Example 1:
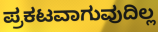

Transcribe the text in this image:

ಪ್ರಕಟವಾಗುವುದಿಲ್ಲ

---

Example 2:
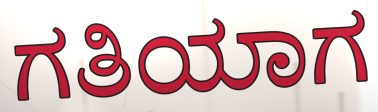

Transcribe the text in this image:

ಗತಿಯಾಗ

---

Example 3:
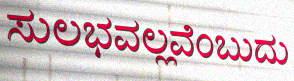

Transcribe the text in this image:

ಸುಲಭವಲ್ಲವೆಂಬುದು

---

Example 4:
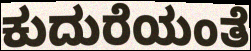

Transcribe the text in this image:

ಕುದುರೆಯಂತೆ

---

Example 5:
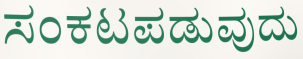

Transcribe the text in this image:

ಸಂಕಟಪಡುವುದು